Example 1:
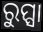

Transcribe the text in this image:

ରୁପ୍ସା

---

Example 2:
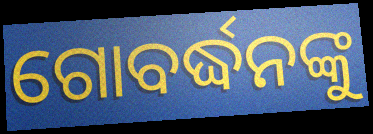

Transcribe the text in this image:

ଗୋବର୍ଦ୍ଧନଙ୍କୁ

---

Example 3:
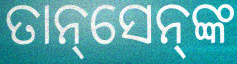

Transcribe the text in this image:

ତାନ୍‌ସେନ୍‌ଙ୍କ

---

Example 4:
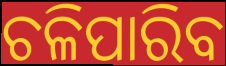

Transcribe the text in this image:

ଚଳିପାରିବ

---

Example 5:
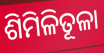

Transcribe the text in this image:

ଶିମିଳିତୂଳା